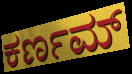
ಕರ್ಣಮ್